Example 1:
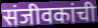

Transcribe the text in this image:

संजीवकांची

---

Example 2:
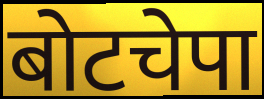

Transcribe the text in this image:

बोटचेपा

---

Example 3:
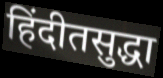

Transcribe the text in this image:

हिंदीतसुद्धा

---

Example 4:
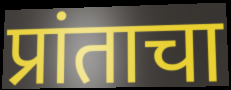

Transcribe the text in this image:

प्रांताचा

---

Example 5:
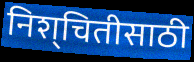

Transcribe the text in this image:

निश्चितीसाठी